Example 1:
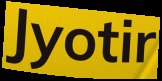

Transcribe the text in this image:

Jyotir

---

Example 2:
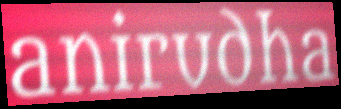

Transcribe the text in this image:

anirudha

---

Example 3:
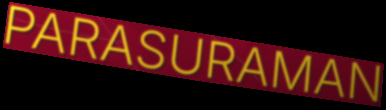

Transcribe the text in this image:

PARASURAMAN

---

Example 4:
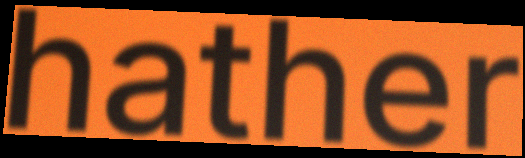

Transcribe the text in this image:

hather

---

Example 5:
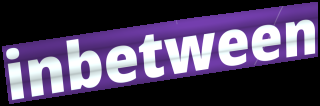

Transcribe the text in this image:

inbetween